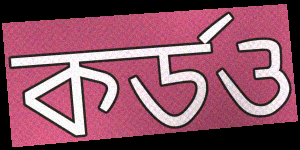
কর্ডও